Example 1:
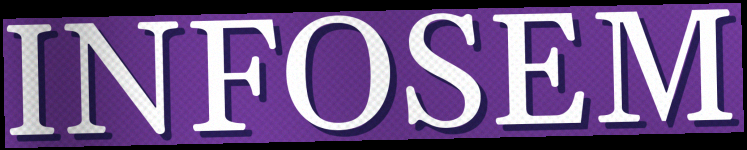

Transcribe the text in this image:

INFOSEM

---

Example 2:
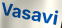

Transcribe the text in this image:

Vasavi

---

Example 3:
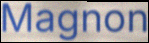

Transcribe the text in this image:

Magnon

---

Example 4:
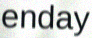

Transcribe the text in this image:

enday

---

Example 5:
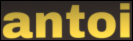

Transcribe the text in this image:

antoi